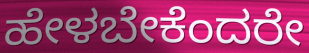
ಹೇಳಬೇಕೆಂದರೇ